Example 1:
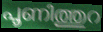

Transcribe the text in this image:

പൂണിത്തുറ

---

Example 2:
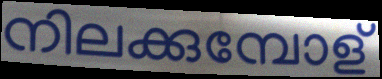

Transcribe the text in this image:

നിലക്കുമ്പോള്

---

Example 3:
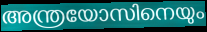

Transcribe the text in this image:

അന്ത്രയോസിനെയും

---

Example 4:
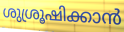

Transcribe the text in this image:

ശുശ്രൂഷിക്കാൻ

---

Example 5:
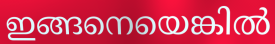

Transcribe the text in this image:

ഇങ്ങനെയെങ്കിൽ